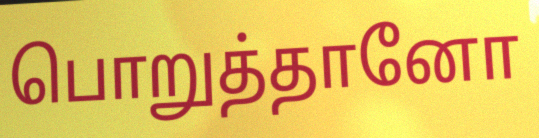
பொறுத்தானோ